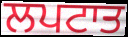
ਲਪਟਾਤ